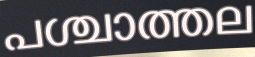
പശ്ചാത്തല